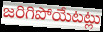
జరిగిపోయేటట్లు